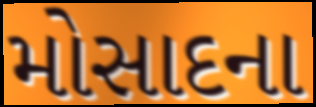
મોસાદના